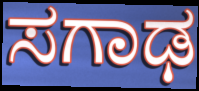
ಸಗಾಢ